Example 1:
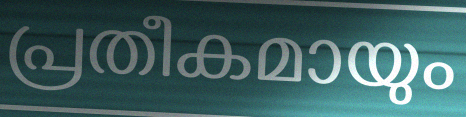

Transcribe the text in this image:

പ്രതീകമായും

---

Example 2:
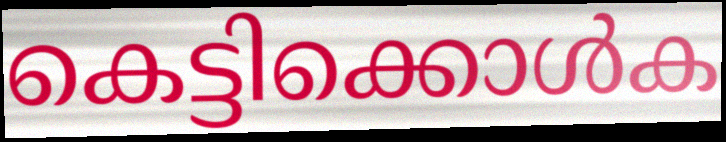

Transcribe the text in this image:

കെട്ടിക്കൊൾക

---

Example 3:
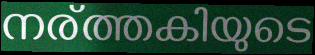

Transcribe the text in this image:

നര്ത്തകിയുടെ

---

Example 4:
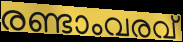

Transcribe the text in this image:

രണ്ടാംവരവ്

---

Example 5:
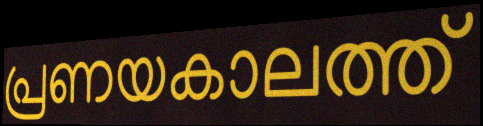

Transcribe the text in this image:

പ്രണയകാലത്ത്